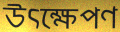
উৎক্ষেপণ